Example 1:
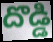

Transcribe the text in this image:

దొడ్డి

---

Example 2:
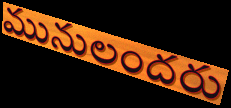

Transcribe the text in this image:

మునులందరు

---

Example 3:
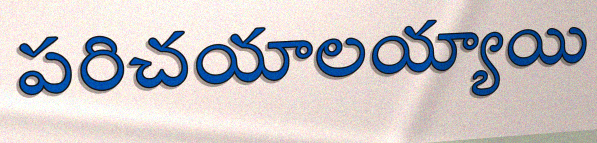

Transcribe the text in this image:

పరిచయాలయ్యాయి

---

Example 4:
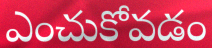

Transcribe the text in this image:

ఎంచుకోవడం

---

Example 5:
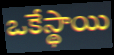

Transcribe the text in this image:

ఒకేస్థాయి